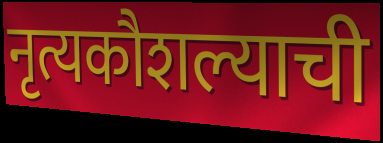
नृत्यकौशल्याची